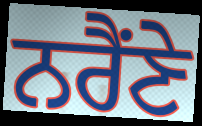
ਨਰੈਂਣੇ